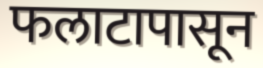
फलाटापासून